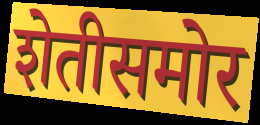
शेतीसमोर